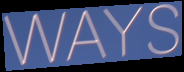
WAYS